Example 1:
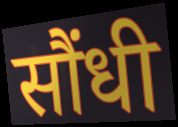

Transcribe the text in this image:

सौंधी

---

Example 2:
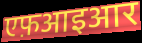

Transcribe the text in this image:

एफ़आइआर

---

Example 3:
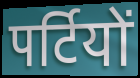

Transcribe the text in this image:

पर्टियों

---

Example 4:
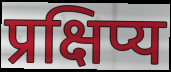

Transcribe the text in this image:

प्रक्षिप्य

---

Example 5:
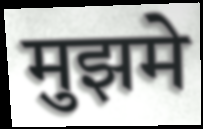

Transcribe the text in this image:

मुझमे